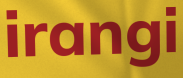
irangi